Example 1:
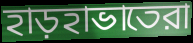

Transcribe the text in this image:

হাড়হাভাতেরা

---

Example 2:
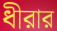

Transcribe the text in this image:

ধীরার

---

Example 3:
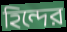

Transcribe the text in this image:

হিন্দের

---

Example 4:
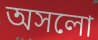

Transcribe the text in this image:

অসলো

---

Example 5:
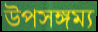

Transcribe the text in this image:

উপসঙ্গম্য